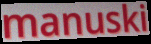
manuski